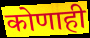
कोणाही